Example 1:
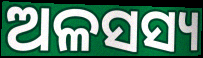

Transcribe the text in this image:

ଅଳସସ୍ୟ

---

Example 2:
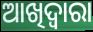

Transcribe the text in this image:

ଆଖିଦ୍ୱାରା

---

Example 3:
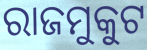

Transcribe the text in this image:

ରାଜମୁକୁଟ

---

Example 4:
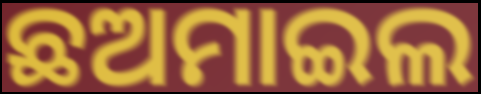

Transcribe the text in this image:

ଛଅମାଇଲ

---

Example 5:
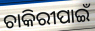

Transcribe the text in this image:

ଚାକିରୀପାଇଁ